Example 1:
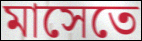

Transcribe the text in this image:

মাসেতে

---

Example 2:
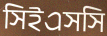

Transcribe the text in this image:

সিইএসসি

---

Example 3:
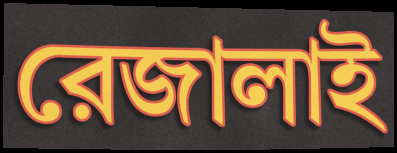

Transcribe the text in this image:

রেজালাই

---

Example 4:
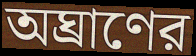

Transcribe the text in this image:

অঘ্রাণের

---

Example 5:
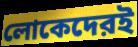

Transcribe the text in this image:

লোকেদেরই